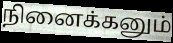
நினைக்கனும்